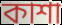
কাশা